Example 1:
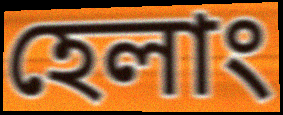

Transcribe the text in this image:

হেলাং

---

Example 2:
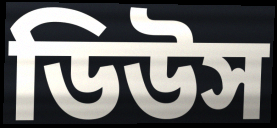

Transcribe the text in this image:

ডিউস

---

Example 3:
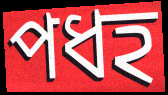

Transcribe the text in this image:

পধহ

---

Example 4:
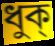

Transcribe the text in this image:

ধুক্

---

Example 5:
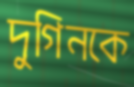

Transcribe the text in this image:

দুগিনকে